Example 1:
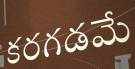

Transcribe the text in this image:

కరగడమే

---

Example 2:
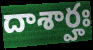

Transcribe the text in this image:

దాశార్హః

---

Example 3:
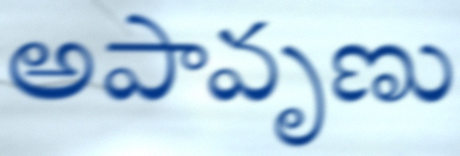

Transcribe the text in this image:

అపావృణు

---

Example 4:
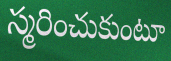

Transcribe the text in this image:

స్మరించుకుంటూ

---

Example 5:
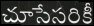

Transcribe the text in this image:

చూసేసరికీ